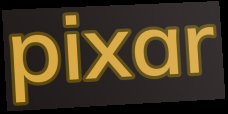
pixar